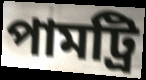
পামট্রি